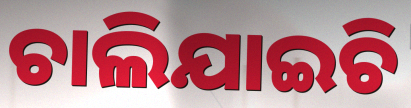
ଚାଲିଯାଇଚି